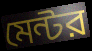
মেন্টর